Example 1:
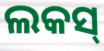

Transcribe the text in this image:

ଲକସ୍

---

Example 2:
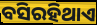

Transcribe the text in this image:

ବସିରହିଥାଏ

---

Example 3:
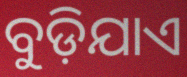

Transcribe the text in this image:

ବୁଡ଼ିଯାଏ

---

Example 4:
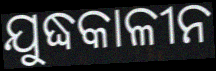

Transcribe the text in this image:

ଯୁଦ୍ଧକାଳୀନ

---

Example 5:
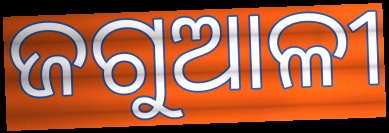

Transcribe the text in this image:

ଜଗୁଆଳୀ